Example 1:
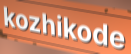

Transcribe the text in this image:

kozhikode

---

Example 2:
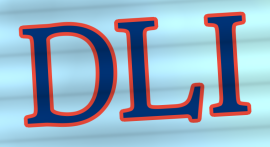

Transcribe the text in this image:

DLI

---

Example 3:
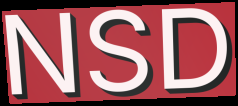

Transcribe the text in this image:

NSD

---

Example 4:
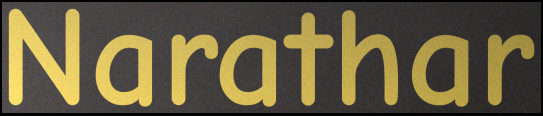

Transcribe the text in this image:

Narathar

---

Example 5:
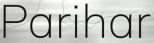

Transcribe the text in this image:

Parihar